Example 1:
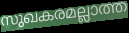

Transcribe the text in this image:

സുഖകരമല്ലാത്ത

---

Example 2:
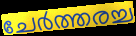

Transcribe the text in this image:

ചേർത്തരച്ച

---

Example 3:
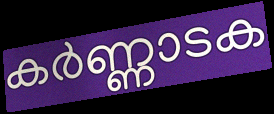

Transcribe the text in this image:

കർണ്ണാടക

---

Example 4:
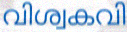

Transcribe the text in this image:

വിശ്വകവി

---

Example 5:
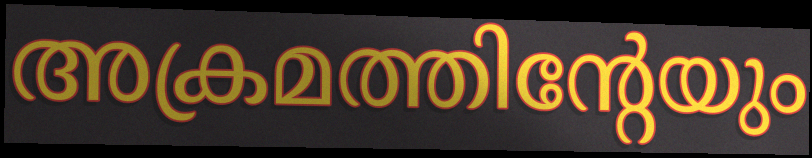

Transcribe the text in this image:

അക്രമത്തിന്റേയും